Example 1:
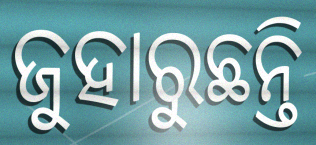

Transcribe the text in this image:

ଜୁହାରୁଛନ୍ତି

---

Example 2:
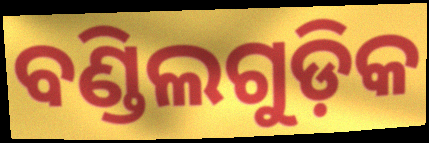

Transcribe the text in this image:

ବଣ୍ଡିଲଗୁଡ଼ିକ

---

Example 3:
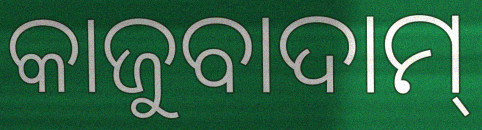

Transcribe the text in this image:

କାଜୁବାଦାମ୍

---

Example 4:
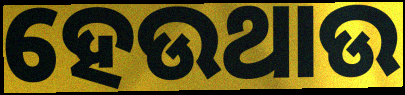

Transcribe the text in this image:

ହେଉଥାଉ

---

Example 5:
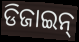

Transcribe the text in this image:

ଡିଜାଇନ୍